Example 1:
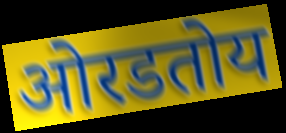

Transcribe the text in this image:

ओरडतोय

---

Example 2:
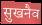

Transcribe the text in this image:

सुखनैव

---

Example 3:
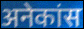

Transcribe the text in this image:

अनेकांस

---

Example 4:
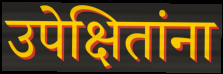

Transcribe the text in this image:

उपेक्षितांना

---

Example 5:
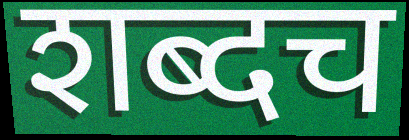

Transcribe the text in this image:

शब्दच